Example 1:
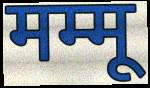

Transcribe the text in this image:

मम्मू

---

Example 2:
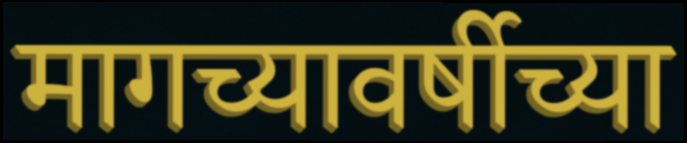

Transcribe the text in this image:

मागच्यावर्षीच्या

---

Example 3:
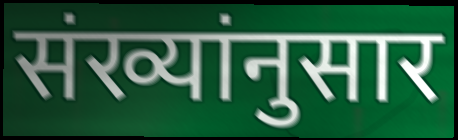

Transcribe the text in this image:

संख्यांनुसार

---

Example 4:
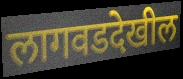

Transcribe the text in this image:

लागवडदेखील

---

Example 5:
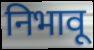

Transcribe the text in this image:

निभावू